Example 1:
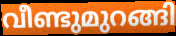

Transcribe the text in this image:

വീണ്ടുമുറങ്ങി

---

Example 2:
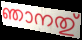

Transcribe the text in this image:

ഞാനതു്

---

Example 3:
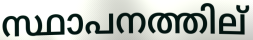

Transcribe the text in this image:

സ്ഥാപനത്തില്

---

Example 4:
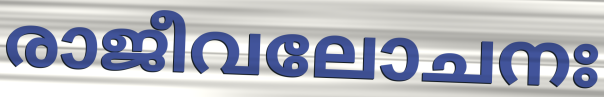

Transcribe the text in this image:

രാജീവലോചനഃ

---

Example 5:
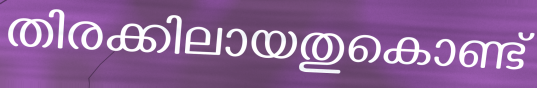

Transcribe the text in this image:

തിരക്കിലായതുകൊണ്ട്